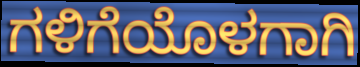
ಗಳಿಗೆಯೊಳಗಾಗಿ